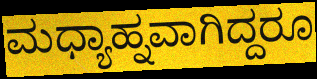
ಮಧ್ಯಾಹ್ನವಾಗಿದ್ದರೂ